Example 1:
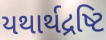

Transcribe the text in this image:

યથાર્થદ્રષ્ટિ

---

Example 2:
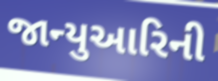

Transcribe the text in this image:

જાન્યુઆરિની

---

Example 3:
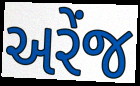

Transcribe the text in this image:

અરેંજ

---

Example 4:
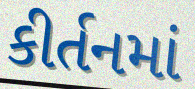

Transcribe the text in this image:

કીર્તનમાં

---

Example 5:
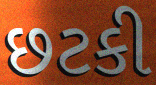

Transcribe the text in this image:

છટકી